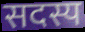
सदस्‍य